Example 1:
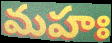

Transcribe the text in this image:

మహః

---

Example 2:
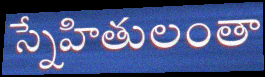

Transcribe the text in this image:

స్నేహితులంతా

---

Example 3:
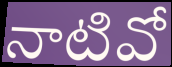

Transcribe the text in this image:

నాటివో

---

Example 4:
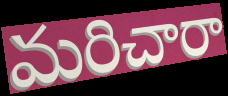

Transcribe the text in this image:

మరిచారా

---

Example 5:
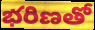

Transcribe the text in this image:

భరిణతో